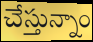
చేస్తున్నాం